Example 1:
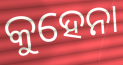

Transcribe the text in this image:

କୁହେନା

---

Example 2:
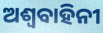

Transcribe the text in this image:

ଅଶ୍ୱବାହିନୀ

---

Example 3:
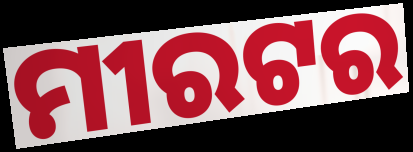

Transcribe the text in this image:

ମୀରଟର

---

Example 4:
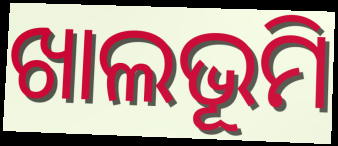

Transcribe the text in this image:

ଖାଲଭୂମି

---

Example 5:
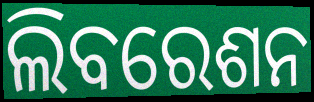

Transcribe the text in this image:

ଲିବରେଶନ